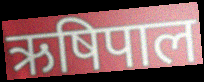
ऋषिपाल